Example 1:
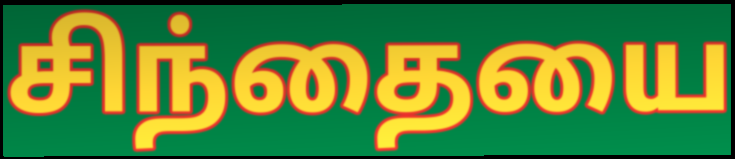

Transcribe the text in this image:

சிந்தையை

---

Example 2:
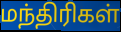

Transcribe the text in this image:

மந்திரிகள்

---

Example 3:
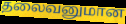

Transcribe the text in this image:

தலைவனுமான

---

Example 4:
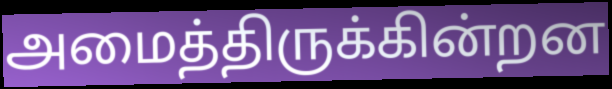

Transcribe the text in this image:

அமைத்திருக்கின்றன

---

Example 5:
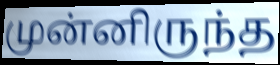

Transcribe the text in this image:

முன்னிருந்த